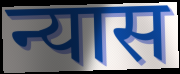
न्‍यास